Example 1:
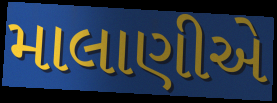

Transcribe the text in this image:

માલાણીએ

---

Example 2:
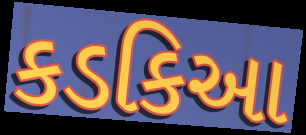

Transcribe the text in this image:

કડકિઆ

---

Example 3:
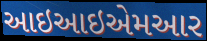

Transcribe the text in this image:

આઇઆઇએમઆર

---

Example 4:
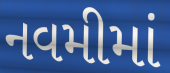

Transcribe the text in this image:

નવમીમાં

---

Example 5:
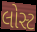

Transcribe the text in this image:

લોસ્ટ